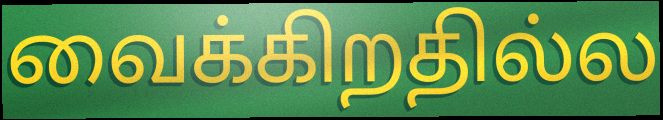
வைக்கிறதில்ல